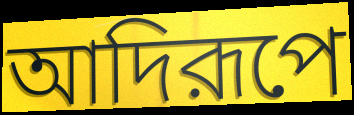
আদিরূপে